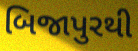
બિજાપુરથી